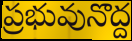
ప్రభువునొద్ద